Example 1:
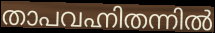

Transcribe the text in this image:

താപവഹ്നിതന്നിൽ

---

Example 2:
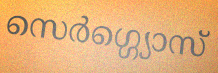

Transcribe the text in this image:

സെർഗ്ഗ്യൊസ്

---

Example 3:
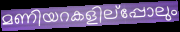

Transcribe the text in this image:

മണിയറകളില്പ്പോലും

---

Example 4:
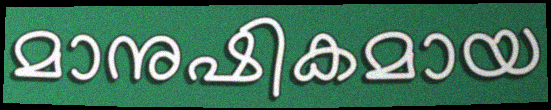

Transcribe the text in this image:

മാനുഷികമായ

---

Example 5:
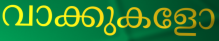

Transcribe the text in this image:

വാക്കുകളോ